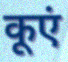
कूएं